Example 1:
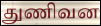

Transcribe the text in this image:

துணிவன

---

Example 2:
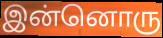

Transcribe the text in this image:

இன்னொரு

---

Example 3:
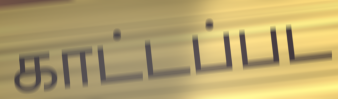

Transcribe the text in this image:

காட்டப்பட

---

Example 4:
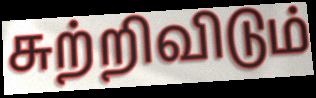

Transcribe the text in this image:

சுற்றிவிடும்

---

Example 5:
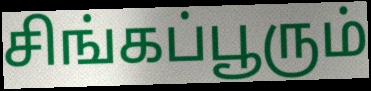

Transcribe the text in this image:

சிங்கப்பூரும்